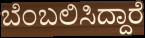
ಬೆಂಬಲಿಸಿದ್ದಾರೆ